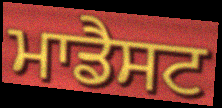
ਮਾਡੈਸਟ